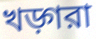
খড়্গরা